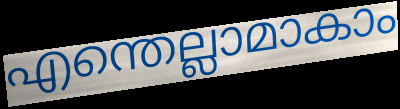
എന്തെല്ലാമാകാം